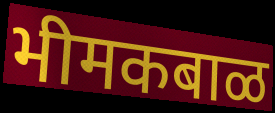
भीमकबाळ